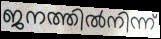
ജനത്തിൽനിന്ന്